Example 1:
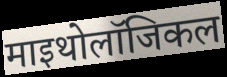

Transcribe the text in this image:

माइथोलॉजिकल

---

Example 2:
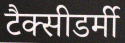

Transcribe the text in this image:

टैक्सीडर्मी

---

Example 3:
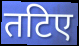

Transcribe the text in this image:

तटिए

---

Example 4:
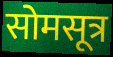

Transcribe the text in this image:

सोमसूत्र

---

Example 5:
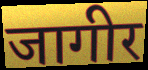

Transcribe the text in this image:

जागीर